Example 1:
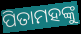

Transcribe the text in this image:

ପିତାମହଙ୍କୁ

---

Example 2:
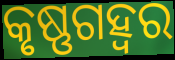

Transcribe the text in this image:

କୃଷ୍ଣଗହ୍ୱର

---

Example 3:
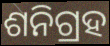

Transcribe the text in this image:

ଶନିଗ୍ରହ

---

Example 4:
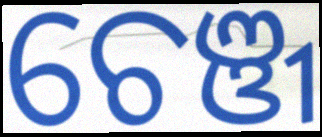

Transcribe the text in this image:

ଚେଞ୍ଜ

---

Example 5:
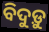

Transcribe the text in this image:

ବିଦୁଡ଼ୁ